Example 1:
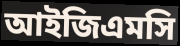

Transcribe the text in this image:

আইজিএমসি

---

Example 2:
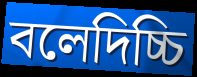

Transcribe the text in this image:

বলেদিচ্চি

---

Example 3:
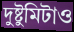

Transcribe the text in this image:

দুষ্টুমিটাও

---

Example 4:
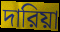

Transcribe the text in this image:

দারিয়া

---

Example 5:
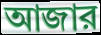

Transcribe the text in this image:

আজার